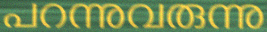
പറന്നുവരുന്നു